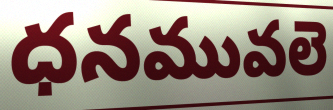
ధనమువలె